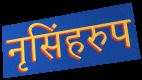
नृसिंहरुप